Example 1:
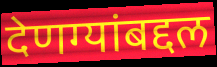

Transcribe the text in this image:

देणग्यांबद्दल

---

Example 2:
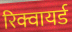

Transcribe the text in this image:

रिक्वायर्ड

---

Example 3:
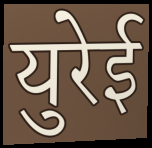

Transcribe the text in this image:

युरेई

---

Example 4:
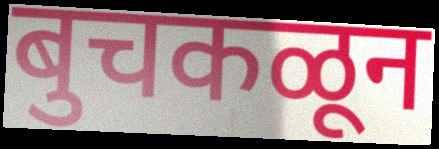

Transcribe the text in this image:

बुचकळून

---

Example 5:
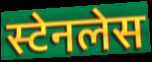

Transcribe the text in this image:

स्टेनलेस